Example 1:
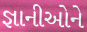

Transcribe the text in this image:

જ્ઞાનીઓને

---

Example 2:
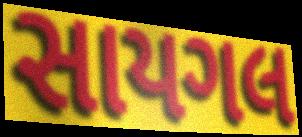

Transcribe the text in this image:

સાયગલ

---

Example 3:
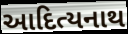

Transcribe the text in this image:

આદિત્યનાથ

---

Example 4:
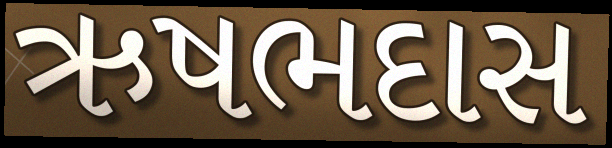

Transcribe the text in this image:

ઋષભદાસ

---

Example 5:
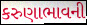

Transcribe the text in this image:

કરુણાભાવની